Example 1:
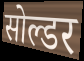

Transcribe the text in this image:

सोल्डर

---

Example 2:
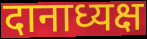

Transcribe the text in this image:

दानाध्यक्ष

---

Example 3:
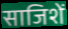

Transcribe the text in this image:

साजिशें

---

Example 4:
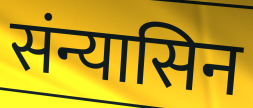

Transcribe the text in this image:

संन्यासिन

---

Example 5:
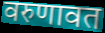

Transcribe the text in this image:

वरुणावत